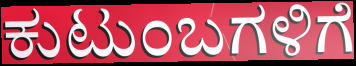
ಕುಟುಂಬಗಳಿಗೆ